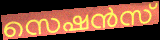
സെഷൻസ്